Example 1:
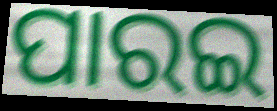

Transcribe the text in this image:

ପାରଇ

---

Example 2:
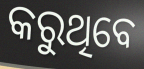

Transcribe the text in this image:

କରୁଥିବେ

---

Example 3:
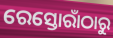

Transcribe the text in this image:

ରେସ୍ତୋରାଁଠାରୁ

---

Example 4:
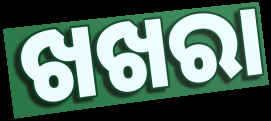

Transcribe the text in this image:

ଖଖରା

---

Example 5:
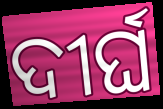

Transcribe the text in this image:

ଦୀର୍ଘ